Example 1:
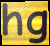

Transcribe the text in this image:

hg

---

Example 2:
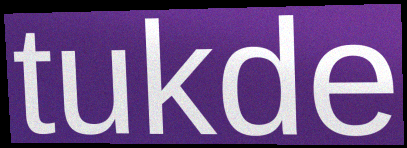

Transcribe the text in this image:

tukde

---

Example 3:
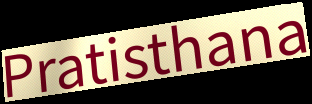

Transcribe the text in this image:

Pratisthana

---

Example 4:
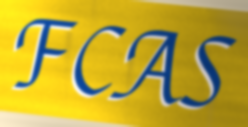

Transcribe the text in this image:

FCAS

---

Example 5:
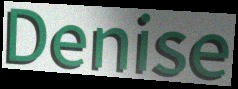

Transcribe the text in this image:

Denise